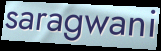
saragwani